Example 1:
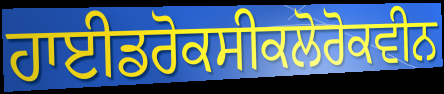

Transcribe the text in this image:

ਹਾਈਡਰੋਕਸੀਕਲੋਰੋਕਵੀਨ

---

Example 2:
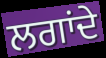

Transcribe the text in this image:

ਲਗਾਂਦੇ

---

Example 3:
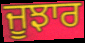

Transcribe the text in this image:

ਜੂਝਾਰ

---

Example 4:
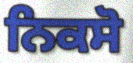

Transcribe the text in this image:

ਨਿਕਸੋ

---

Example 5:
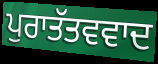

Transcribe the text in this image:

ਪੁਰਾਤੱਤਵਵਾਦ